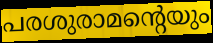
പരശുരാമന്റെയും